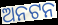
ଅନଟନ